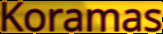
Koramas